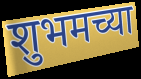
शुभमच्या